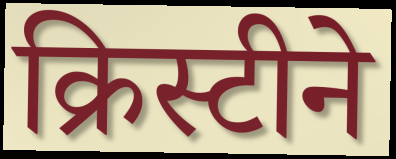
क्रिस्टीने